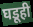
घडूही